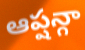
ఆప్షన్గా